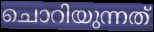
ചൊറിയുന്നത്